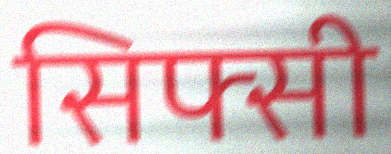
सिफ्सी